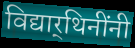
विद्यार्थिनींनी